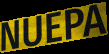
NUEPA